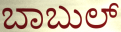
ಬಾಬುಲ್